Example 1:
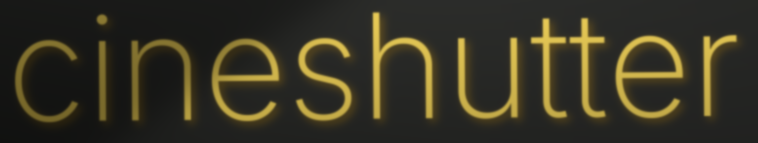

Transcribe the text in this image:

cineshutter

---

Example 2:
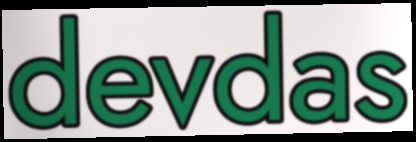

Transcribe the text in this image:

devdas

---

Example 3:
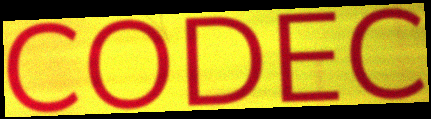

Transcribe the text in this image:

CODEC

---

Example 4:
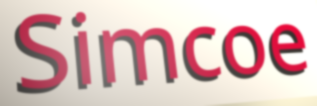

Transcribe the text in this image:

Simcoe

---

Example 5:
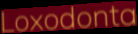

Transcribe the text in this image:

Loxodonta